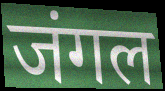
जंगल